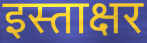
इस्ताक्षर